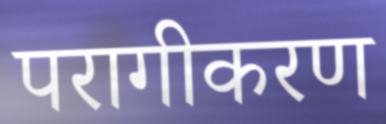
परागीकरण